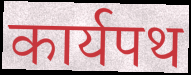
कार्यपथ